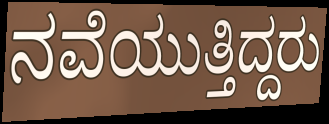
ನವೆಯುತ್ತಿದ್ದರು